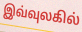
இவ்வுலகில்